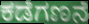
ಕಡೆಗಣನೆ